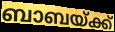
ബാബയ്ക്ക്